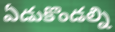
ఏడుకొండల్ని